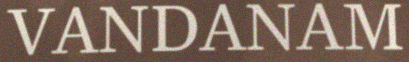
VANDANAM